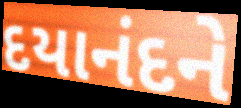
દયાનંદને